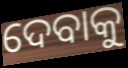
ଦେବାକୁ